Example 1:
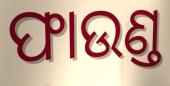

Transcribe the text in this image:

ଫାଉଣ୍ଡ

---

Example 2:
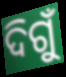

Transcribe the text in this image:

ଦିଗୁଁ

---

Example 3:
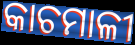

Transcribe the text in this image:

କାଚମାଳୀ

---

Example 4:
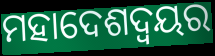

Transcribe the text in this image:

ମହାଦେଶଦ୍ଵୟର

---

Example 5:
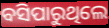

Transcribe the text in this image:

ବସିପାରୁଥିଲେ